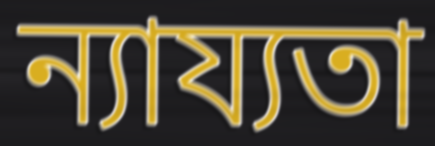
ন্যায্যতা